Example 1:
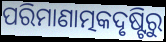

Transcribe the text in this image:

ପରିମାଣାତ୍ମକଦୃଷ୍ଟିରୁ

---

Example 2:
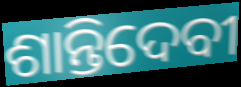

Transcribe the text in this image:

ଶାନ୍ତିଦେବୀ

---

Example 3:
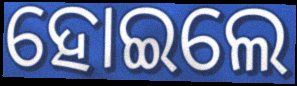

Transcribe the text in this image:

ହୋଇଲେ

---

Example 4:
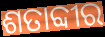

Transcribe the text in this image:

ଶତାବ୍ଦୀର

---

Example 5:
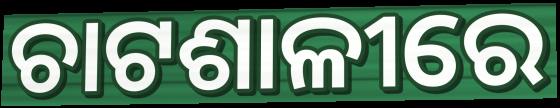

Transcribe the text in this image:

ଚାଟଶାଳୀରେ